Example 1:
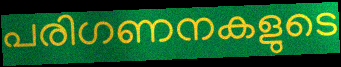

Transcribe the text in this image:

പരിഗണനകളുടെ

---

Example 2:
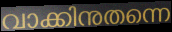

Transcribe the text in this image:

വാക്കിനുതന്നെ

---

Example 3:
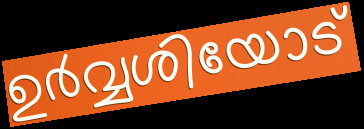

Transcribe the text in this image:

ഉർവ്വശിയോട്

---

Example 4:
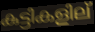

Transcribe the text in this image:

കുട്ടികളില്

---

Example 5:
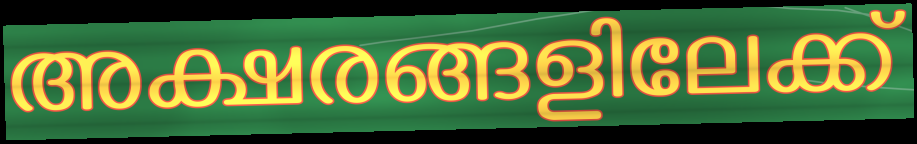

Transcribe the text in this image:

അക്ഷരങ്ങളിലേക്ക്